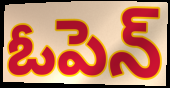
ఓపెన్